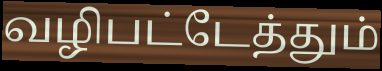
வழிபட்டேத்தும்